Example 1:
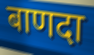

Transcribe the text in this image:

बाणदा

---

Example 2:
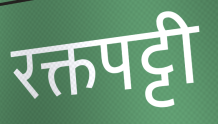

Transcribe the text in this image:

रक्तपट्टी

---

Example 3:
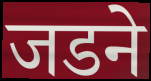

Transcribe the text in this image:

जडने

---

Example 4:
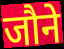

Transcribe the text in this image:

जौने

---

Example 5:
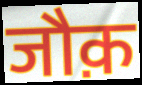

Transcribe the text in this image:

जौक़